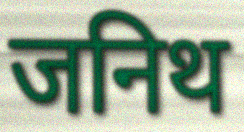
जनिथ